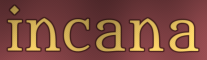
incana